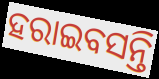
ହରାଇବସନ୍ତି